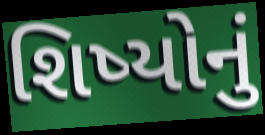
શિષ્યોનું